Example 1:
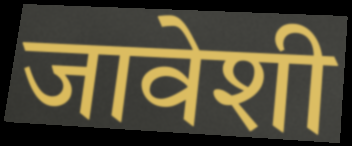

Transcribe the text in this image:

जावेशी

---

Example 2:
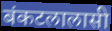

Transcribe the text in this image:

बंकटलालासी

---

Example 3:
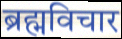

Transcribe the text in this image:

ब्रह्मविचार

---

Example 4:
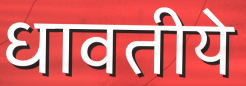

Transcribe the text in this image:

धावतीये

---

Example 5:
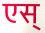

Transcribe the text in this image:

एस्